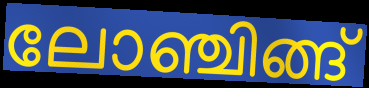
ലോഞ്ചിങ്ങ്